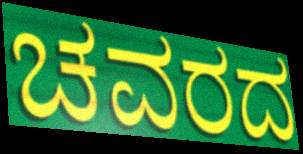
ಚವರದ